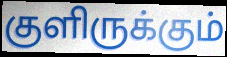
குளிருக்கும்